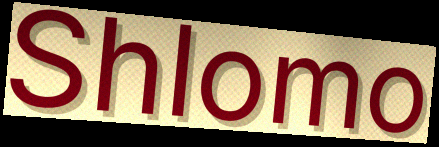
Shlomo